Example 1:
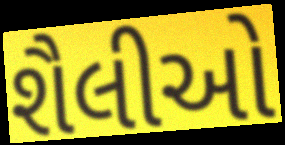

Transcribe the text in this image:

શૈલીઓ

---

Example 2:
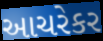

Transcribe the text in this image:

આચરેકર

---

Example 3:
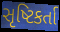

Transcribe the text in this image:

સૃષ્ટિકર્તા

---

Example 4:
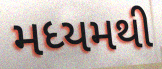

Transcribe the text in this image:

મધ્યમથી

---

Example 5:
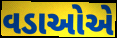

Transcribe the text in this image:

વડાઓએ